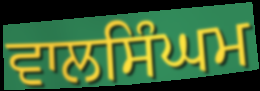
ਵਾਲਸਿੰਘਮ